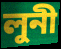
লুনী